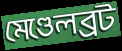
মেণ্ডেলব্ৰট